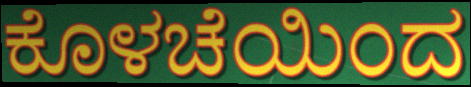
ಕೊಳಚೆಯಿಂದ